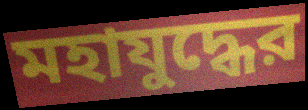
মহাযুদ্ধের